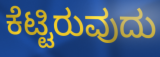
ಕೆಟ್ಟಿರುವುದು